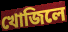
খোজিলে